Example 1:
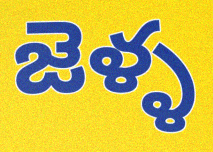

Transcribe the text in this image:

జెళ్ళ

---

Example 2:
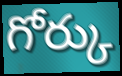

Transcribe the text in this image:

గోర్కు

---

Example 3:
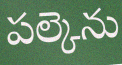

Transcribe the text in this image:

పల్కెను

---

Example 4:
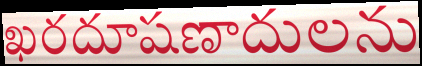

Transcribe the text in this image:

ఖరదూషణాదులను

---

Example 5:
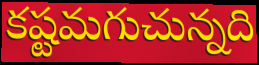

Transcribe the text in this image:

కష్టమగుచున్నది